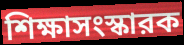
শিক্ষাসংস্কারক